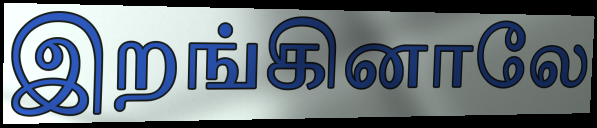
இறங்கினாலே